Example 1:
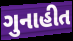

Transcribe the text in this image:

ગુનાહીત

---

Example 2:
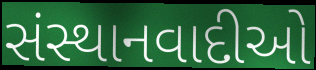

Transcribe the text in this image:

સંસ્થાનવાદીઓ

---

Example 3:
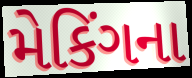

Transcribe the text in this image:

મેકિંગના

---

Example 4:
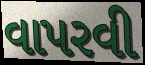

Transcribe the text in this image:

વાપરવી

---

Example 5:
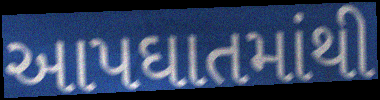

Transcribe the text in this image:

આપઘાતમાંથી